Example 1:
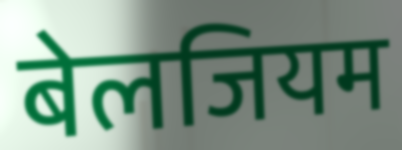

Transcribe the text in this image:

बेलजियम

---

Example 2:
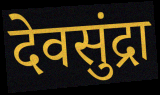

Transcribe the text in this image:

देवसुंद्रा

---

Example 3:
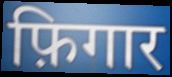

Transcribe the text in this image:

फ़िगार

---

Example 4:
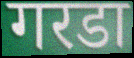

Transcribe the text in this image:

गरडा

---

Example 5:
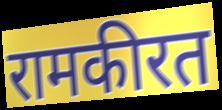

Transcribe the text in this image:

रामकीरत